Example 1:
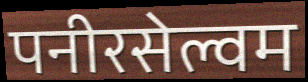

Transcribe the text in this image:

पनीरसेल्वम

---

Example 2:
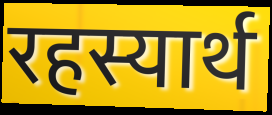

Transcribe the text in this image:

रहस्यार्थ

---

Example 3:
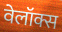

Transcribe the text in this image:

वेलॉक्स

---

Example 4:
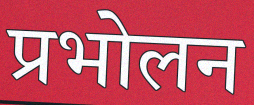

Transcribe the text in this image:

प्रभोलन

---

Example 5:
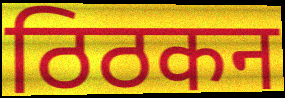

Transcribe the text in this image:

ठिठकन